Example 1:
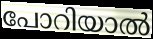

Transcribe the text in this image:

പോറിയാൽ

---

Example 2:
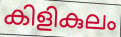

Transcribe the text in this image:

കിളികുലം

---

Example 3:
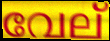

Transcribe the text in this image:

വേല്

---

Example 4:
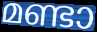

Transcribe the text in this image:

മണ്ടാ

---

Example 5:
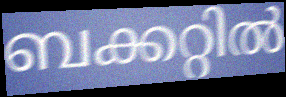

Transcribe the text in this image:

ബക്കറ്റിൽ